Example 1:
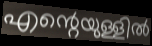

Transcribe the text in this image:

എന്റെയുള്ളിൽ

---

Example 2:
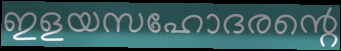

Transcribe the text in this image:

ഇളയസഹോദരന്റെ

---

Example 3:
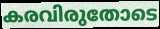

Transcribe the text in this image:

കരവിരുതോടെ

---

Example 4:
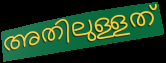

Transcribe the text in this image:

അതിലുള്ളത്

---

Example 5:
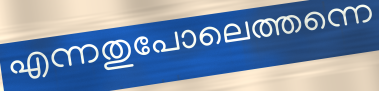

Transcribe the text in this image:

എന്നതുപോലെത്തന്നെ